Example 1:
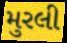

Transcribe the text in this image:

મુરલી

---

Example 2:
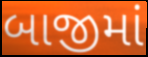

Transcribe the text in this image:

બાજીમાં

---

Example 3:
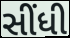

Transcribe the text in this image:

સીંધી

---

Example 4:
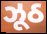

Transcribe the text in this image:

ઝૂઠ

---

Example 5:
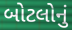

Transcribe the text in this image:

બોટલોનું